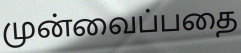
முன்வைப்பதை